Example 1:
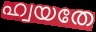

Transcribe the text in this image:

ഹ്വയതേ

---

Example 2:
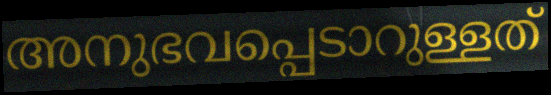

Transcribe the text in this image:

അനുഭവപ്പെടാറുള്ളത്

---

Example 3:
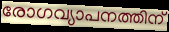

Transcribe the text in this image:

രോഗവ്യാപനത്തിന്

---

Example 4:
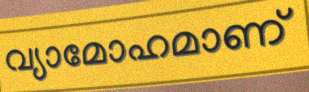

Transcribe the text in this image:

വ്യാമോഹമാണ്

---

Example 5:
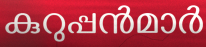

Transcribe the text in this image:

കുറുപ്പൻമാർ